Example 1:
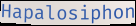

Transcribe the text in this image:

Hapalosiphon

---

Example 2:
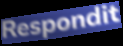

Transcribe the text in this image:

Respondit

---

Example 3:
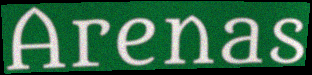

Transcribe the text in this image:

Arenas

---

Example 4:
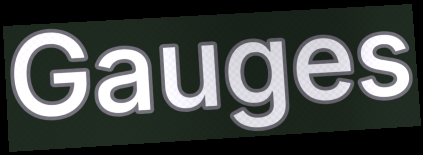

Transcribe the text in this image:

Gauges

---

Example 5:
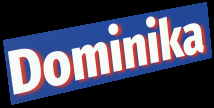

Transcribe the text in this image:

Dominika